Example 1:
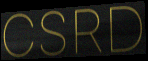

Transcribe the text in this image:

CSRD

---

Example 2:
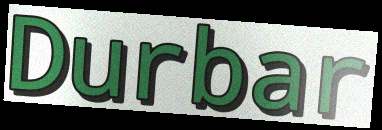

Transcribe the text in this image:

Durbar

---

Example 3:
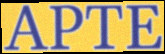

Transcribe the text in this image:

APTE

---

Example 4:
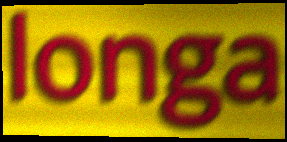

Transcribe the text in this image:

longa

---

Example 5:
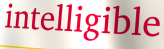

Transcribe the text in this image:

intelligible